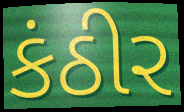
કંઠીર